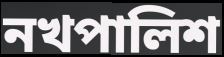
নখপালিশ